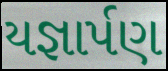
યજ્ઞાર્પણ